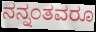
ನನ್ನಂತವರೂ